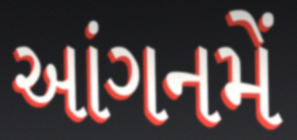
આંગનમેં